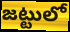
జట్టులో